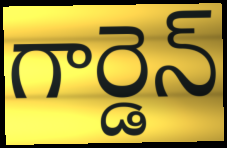
గార్డెన్